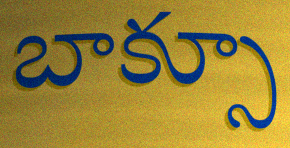
బాక్సూ